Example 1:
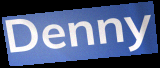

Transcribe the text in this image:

Denny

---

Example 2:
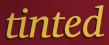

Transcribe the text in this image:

tinted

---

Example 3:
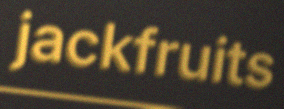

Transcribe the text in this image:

jackfruits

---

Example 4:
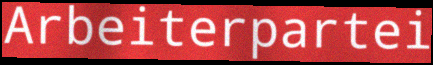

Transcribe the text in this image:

Arbeiterpartei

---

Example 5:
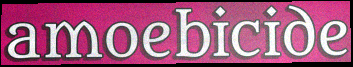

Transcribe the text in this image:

amoebicide